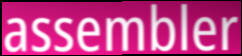
assembler